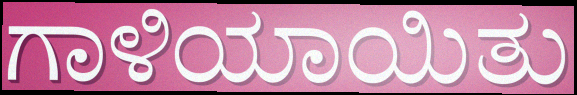
ಗಾಳಿಯಾಯಿತು